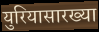
युरियासारख्या